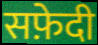
सफ़ेदी